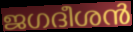
ജഗദീശൻ